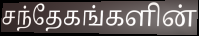
சந்தேகங்களின்